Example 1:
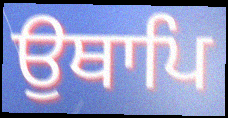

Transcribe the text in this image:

ਉਥਾਪਿ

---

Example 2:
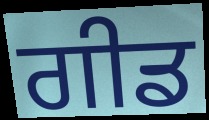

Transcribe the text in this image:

ਗੀਡ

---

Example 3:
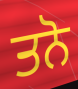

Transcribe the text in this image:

ਤਨੋ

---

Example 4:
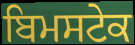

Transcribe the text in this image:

ਬਿਮਸਟੇਕ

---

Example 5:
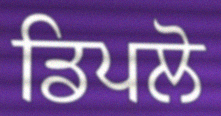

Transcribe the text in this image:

ਡਿਪਲੋ